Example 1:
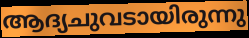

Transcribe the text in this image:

ആദ്യചുവടായിരുന്നു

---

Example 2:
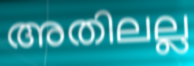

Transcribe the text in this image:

അതിലല്ല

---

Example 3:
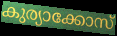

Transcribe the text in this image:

കുര്യാക്കോസ്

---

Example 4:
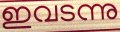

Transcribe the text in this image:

ഇവടന്നു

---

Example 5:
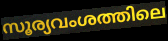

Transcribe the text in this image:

സൂര്യവംശത്തിലെ